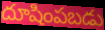
దూషింపబడు